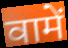
वामें